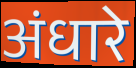
अंधारे